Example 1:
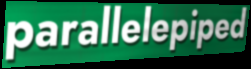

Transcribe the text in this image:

parallelepiped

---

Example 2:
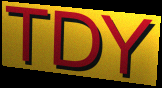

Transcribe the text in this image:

TDY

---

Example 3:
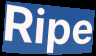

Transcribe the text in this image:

Ripe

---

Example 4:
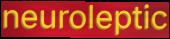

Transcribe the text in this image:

neuroleptic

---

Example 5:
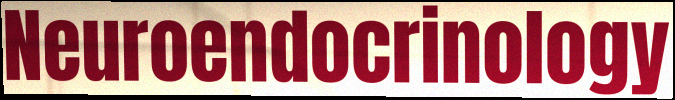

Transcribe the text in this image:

Neuroendocrinology